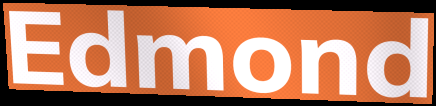
Edmond